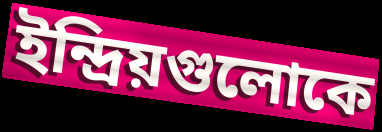
ইন্দ্রিয়গুলোকে